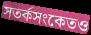
সতর্কসংকেতও